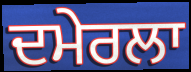
ਦਮੇਰਲਾ